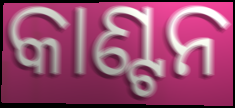
କାଣ୍ଟନ